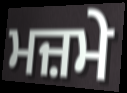
ਮਜ਼ਮੇ